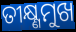
ତୀକ୍ଷ୍ଣମୁଖ